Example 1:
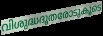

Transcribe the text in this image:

വിശുദ്ധദൂതരോടുകൂടെ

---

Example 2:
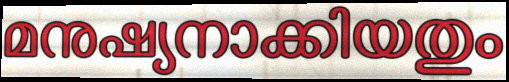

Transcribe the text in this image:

മനുഷ്യനാക്കിയതും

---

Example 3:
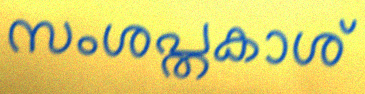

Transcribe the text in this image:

സംശപ്തകാശ്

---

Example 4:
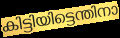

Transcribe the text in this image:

കിട്ടിയിട്ടെന്തിനാ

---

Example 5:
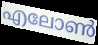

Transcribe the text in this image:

എലോൺ